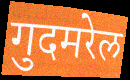
गुदमरेल